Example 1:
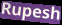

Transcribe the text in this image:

Rupesh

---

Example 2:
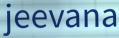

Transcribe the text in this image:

jeevana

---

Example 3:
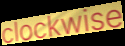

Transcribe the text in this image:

clockwise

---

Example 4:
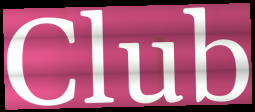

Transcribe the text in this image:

Club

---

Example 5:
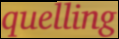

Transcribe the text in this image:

quelling